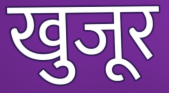
खुजूर